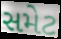
સમેટ